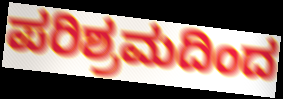
ಪರಿಶ್ರಮದಿಂದ